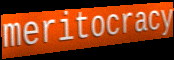
meritocracy